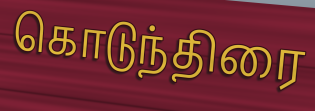
கொடுந்திரை